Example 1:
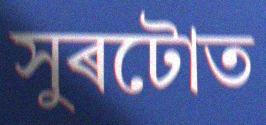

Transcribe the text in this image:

সুৰটোত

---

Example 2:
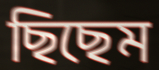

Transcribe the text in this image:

ছিছেম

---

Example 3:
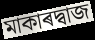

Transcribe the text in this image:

মাকাৰদ্বাজ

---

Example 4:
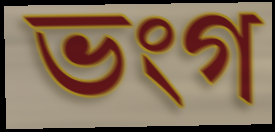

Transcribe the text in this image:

ভংগ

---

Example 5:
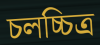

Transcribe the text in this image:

চলচ্চিত্ৰ